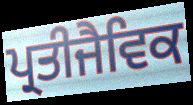
ਪ੍ਰਤੀਜੈਵਿਕ